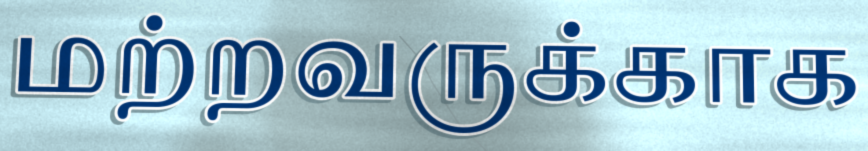
மற்றவருக்காக